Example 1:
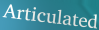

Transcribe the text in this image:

Articulated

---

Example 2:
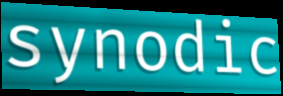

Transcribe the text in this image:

synodic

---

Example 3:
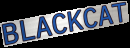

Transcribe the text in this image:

BLACKCAT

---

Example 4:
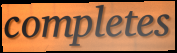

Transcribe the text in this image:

completes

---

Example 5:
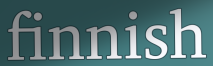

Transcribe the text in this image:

finnish